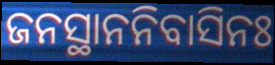
ଜନସ୍ଥାନନିବାସିନଃ